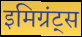
इमिग्रंट्स